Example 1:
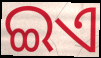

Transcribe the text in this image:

ଇଏ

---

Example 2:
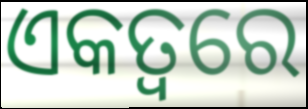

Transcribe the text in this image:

ଏକତ୍ୱରେ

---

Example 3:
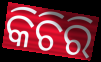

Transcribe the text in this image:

କିଚିରି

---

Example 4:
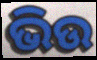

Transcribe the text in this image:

ଭିଉ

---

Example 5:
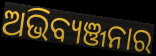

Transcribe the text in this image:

ଅଭିବ୍ୟଞ୍ଜନାର